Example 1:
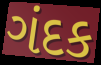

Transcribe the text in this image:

ગંદક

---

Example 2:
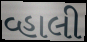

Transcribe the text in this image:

વ્હાલી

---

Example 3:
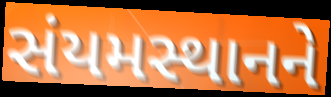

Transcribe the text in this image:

સંયમસ્થાનને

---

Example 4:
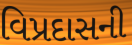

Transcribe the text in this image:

વિપ્રદાસની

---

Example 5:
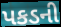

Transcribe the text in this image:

પકડની